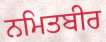
ਨਮਿਤਬੀਰ